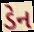
ડેન